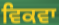
ਵਿਕਵਾ